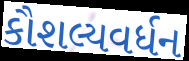
કૌશલ્યવર્ધન